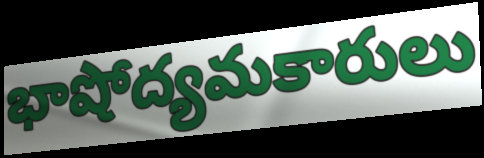
భాషోద్యమకారులు